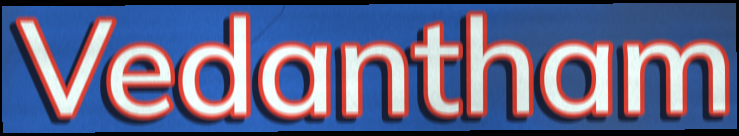
Vedantham